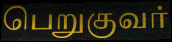
பெறுகுவர்